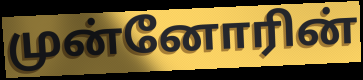
முன்னோரின்